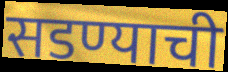
सडण्याची